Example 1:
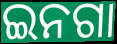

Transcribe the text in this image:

ଇନଗା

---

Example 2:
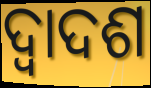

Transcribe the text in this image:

ଦ୍ୱାଦଶ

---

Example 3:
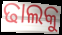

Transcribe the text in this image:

ଢାଲକୁ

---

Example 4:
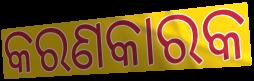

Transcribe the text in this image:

କରଣକାରକ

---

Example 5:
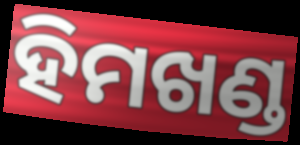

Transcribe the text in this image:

ହିମଖଣ୍ଡ